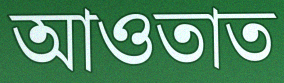
আওতাত